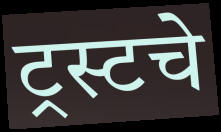
ट्रस्टचे